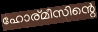
ഹോര്മീസിന്റെ